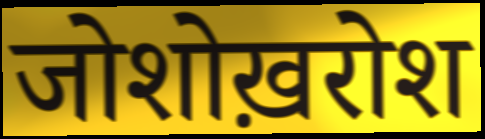
जोशोख़रोश